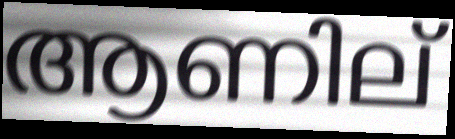
ആണില്